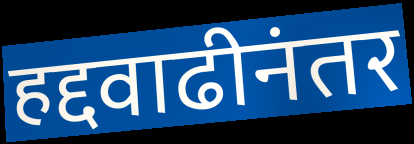
हद्दवाढीनंतर